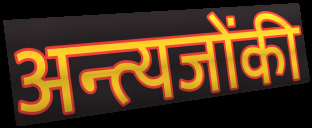
अन्त्यजोंकी